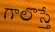
గాలొస్తే